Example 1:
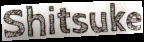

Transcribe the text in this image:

Shitsuke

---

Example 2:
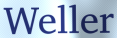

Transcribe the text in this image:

Weller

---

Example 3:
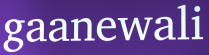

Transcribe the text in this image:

gaanewali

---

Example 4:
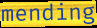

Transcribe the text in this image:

mending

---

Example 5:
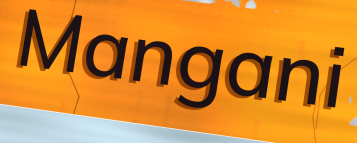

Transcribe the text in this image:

Mangani